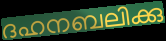
ദഹനബലിക്കു